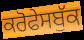
ਕਰੋਫੇਸਬੁੱਕ